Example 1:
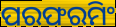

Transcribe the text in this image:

ପରଫରମିଂ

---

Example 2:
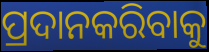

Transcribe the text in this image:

ପ୍ରଦାନକରିବାକୁ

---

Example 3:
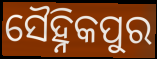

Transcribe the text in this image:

ସୈହ୍ନିକପୁର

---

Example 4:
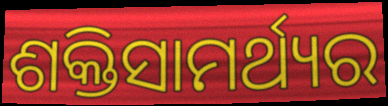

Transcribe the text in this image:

ଶକ୍ତିସାମର୍ଥ୍ୟର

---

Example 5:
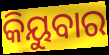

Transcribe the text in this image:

କିୟୁବାର